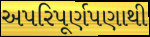
અપરિપૂર્ણપણાથી